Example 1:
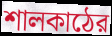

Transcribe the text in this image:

শালকাঠের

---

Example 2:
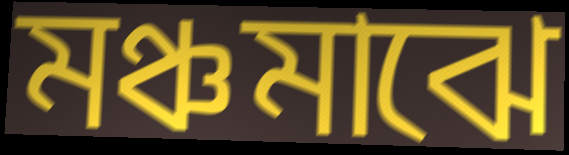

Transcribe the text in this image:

মঞ্চমাঝে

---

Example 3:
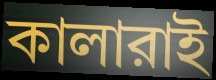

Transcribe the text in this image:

কালারাই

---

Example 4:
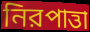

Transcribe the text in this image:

নিরপাত্তা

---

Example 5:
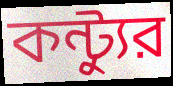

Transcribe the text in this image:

কন্ট্যুর